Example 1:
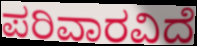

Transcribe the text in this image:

ಪರಿವಾರವಿದೆ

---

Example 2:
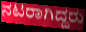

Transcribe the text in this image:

ನಟರಾಗಿದ್ದರು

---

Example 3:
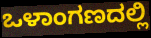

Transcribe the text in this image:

ಒಳಾಂಗಣದಲ್ಲಿ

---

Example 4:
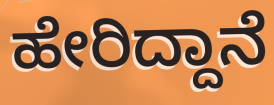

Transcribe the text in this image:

ಹೇರಿದ್ದಾನೆ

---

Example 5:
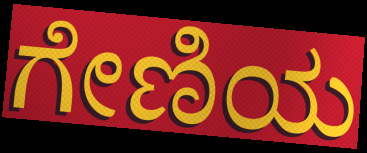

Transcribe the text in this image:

ಗೇಣಿಯ